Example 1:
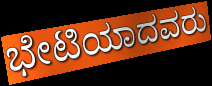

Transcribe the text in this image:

ಭೇಟಿಯಾದವರು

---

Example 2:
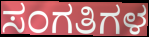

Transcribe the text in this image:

ಸಂಗತಿಗಳ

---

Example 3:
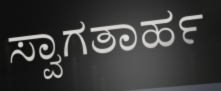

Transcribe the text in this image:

ಸ್ವಾಗತಾರ್ಹ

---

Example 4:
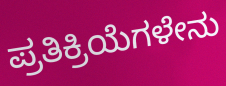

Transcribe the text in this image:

ಪ್ರತಿಕ್ರಿಯೆಗಳೇನು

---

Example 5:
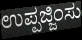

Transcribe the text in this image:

ಉಪ್ಪಜ್ಜಿಂಸು